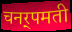
चनर्पमती